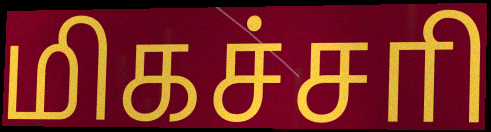
மிகச்சரி